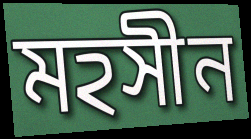
মহসীন